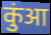
कुंआ